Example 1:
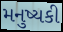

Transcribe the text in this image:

મનુષ્યકી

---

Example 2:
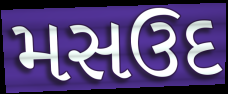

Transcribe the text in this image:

મસઉદ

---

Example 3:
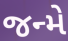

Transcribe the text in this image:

જન્મે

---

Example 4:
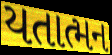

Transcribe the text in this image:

યતાત્મન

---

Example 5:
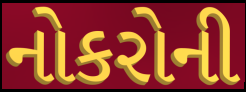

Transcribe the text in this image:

નોકરોની